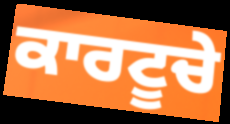
ਕਾਰਟੂਚੇ